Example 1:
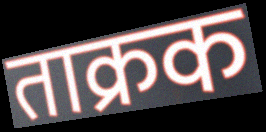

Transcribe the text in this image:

ताक्रक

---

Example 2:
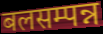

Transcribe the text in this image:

बलसम्पन्न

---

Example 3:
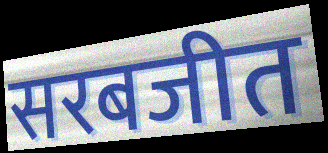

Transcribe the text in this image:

सरबजीत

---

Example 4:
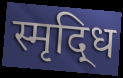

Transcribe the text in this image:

स्मृद्धि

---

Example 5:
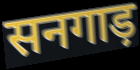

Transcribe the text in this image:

सनगाड़